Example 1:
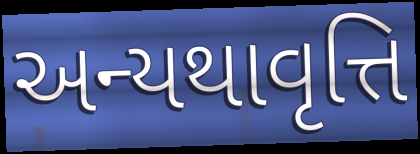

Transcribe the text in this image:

અન્યથાવૃત્તિ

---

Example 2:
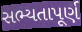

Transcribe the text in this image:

સભ્યતાપૂર્ણ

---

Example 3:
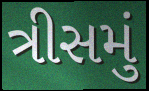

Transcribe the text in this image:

ત્રીસમું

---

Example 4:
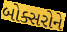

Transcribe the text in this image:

બોક્સરોને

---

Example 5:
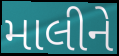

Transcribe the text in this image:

માલીને